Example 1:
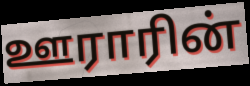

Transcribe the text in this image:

ஊராரின்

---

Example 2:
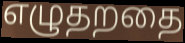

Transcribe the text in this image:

எழுதறதை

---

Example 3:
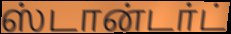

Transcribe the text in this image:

ஸ்டான்டர்ட்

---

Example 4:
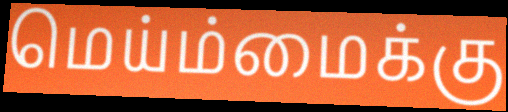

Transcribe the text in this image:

மெய்ம்மைக்கு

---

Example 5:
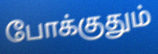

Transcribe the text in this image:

போக்குதும்